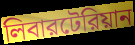
লিবারটেরিয়ান